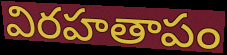
విరహతాపం